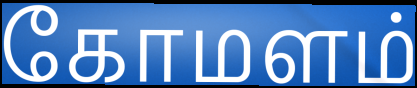
கோமளம்